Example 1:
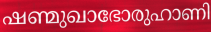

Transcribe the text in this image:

ഷണ്മുഖാഭോരുഹാണി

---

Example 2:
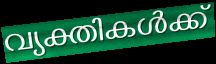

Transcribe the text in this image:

വ്യക്തികൾക്ക്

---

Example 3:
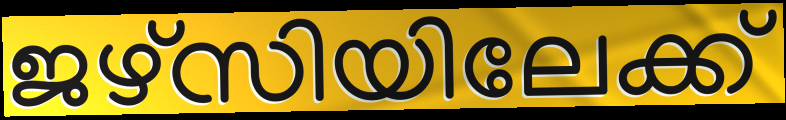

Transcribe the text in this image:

ജഴ്സിയിലേക്ക്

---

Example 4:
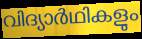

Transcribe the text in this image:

വിദ്യാർഥികളും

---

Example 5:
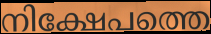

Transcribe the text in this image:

നിക്ഷേപത്തെ